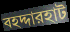
বহদ্দারহাট